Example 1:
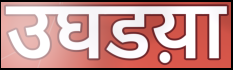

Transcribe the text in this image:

उघडय़ा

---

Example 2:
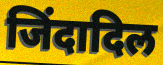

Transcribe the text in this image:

जिंदादिल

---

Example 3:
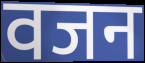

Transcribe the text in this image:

वजन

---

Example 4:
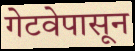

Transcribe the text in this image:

गेटवेपासून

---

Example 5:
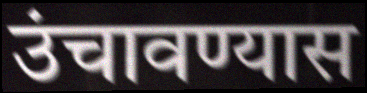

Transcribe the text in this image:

उंचावण्यास